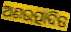
ଅଣଉତ୍ପାଦିତ